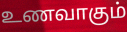
உணவாகும்